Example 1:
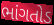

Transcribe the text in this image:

ભાંગતોડ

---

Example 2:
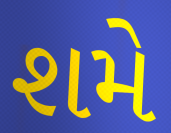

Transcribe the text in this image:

શમે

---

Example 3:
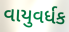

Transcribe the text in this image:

વાયુવર્ધક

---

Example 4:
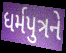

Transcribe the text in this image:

ધર્મપુત્રને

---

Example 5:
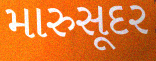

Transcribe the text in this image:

મારુસૂદર